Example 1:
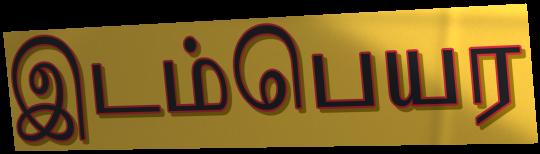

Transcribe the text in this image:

இடம்பெயர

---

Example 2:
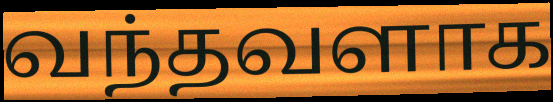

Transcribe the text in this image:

வந்தவளாக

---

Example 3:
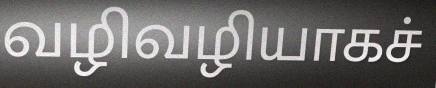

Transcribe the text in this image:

வழிவழியாகச்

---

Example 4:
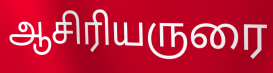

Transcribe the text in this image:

ஆசிரியருரை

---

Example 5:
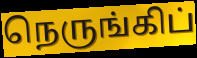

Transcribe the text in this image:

நெருங்கிப்